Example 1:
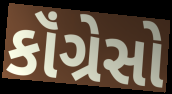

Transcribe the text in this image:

કૉંગ્રેસો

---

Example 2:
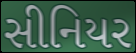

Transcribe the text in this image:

સીનિયર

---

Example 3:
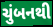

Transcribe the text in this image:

ચુંબનથી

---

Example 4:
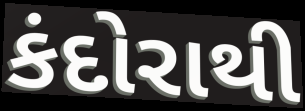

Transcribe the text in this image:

કંદોરાથી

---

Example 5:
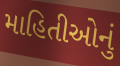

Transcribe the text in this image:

માહિતીઓનું